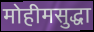
मोहीमसुद्धा